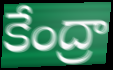
కేంద్రా